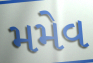
મમેવ